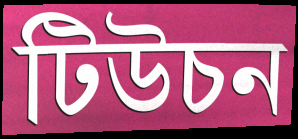
টিউচন